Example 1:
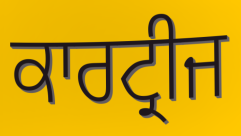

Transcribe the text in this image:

ਕਾਰਟ੍ਰੀਜ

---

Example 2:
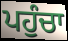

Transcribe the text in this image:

ਪਹੁੰਚਾ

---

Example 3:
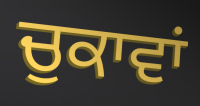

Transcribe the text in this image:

ਚੁਕਾਵਾਂ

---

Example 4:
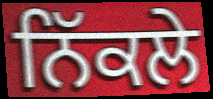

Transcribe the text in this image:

ਨਿੱਕਲੇ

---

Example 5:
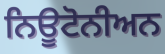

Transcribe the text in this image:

ਨਿਊਟੋਨੀਅਨ